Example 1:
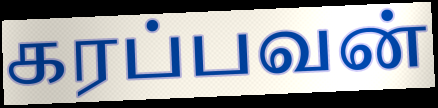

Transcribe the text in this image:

கரப்பவன்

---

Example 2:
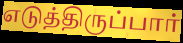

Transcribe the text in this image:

எடுத்திருப்பார்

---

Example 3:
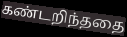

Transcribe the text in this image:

கண்டறிந்ததை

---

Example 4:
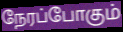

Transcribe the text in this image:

நேரப்போகும்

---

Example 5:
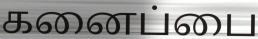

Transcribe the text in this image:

கனைப்பை